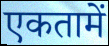
एकतामें